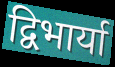
द्विभार्या